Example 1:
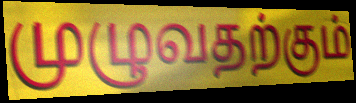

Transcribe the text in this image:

முழுவதற்கும்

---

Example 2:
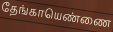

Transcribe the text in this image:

தேங்காயெண்ணை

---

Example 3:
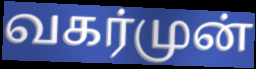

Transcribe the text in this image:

வகர்முன்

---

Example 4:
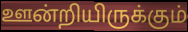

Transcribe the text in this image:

ஊன்றியிருக்கும்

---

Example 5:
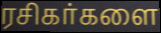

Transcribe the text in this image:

ரசிகர்களை